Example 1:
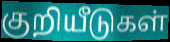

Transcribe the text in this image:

குறியீடுகள்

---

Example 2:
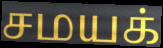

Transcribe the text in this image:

சமயக்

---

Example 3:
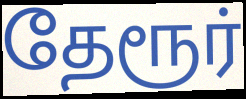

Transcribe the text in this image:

தேரூர்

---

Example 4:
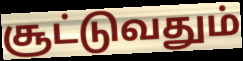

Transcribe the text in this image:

சூட்டுவதும்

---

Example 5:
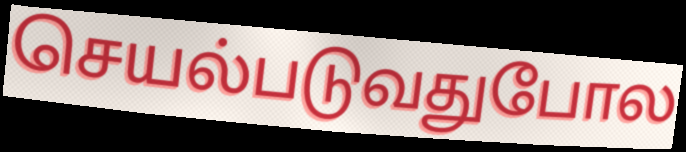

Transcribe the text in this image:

செயல்படுவதுபோல